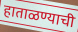
हाताळण्याची